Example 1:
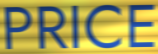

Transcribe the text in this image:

PRICE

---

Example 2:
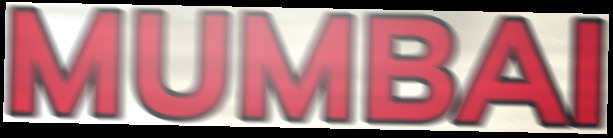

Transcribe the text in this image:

MUMBAI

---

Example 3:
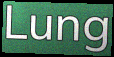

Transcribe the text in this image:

Lung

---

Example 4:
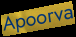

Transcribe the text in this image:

Apoorva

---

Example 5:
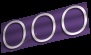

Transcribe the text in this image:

ooo